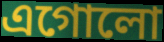
এগোলো